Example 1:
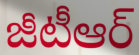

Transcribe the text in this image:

జీటీఆర్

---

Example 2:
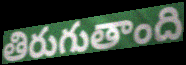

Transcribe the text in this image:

తిరుగుతాంది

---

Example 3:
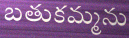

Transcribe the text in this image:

బతుకమ్మను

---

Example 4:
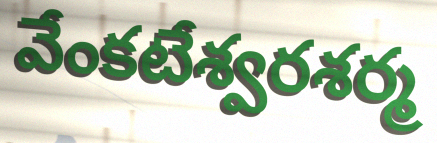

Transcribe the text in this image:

వేంకటేశ్వరశర్మ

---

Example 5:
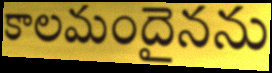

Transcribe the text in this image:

కాలమందైనను